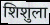
शिशुला